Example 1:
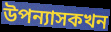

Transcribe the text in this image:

উপন্যাসকখন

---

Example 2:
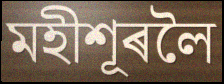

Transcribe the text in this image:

মহীশূৰলৈ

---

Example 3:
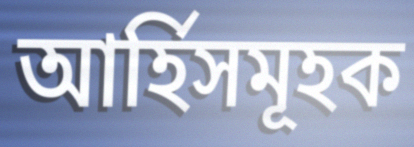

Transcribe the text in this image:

আৰ্হিসমূহক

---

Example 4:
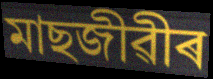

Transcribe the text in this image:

মাছজীৱীৰ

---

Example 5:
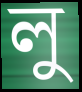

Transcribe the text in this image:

লু